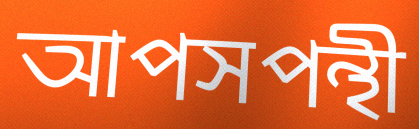
আপসপন্থী